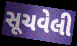
સૂચવેલી